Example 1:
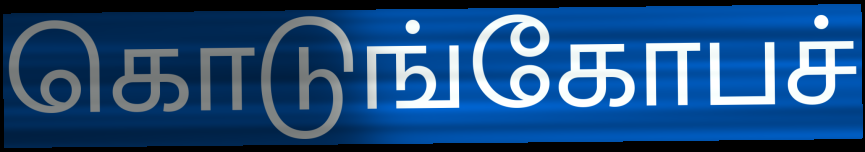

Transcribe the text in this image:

கொடுங்கோபச்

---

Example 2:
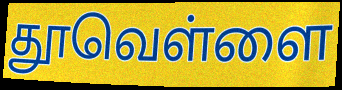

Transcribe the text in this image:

தூவெள்ளை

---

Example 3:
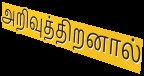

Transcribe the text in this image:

அறிவுத்திறனால்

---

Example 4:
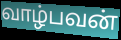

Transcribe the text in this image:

வாழ்பவன்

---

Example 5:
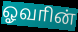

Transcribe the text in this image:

ஓவரின்